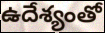
ఉదేశ్యంతో